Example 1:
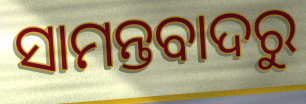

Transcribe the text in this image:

ସାମନ୍ତବାଦରୁ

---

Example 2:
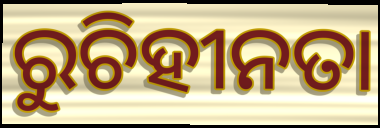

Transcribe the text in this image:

ରୁଚିହୀନତା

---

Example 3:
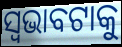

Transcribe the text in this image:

ସ୍ଵଭାବଟାକୁ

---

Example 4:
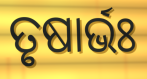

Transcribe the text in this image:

ତୃଷାର୍ଭଃ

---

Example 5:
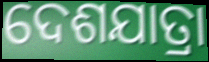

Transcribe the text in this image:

ଦେଶଯାତ୍ରା